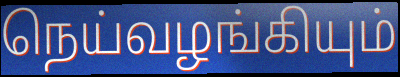
நெய்வழங்கியும்